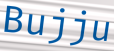
Bujju